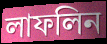
লাফলিন